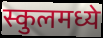
स्कुलमध्ये